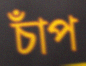
চাঁপ